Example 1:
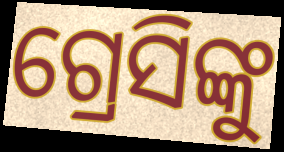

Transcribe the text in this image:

ଗ୍ରେସିଙ୍କୁ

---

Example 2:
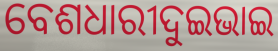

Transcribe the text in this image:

ବେଶଧାରୀଦୁଇଭାଇ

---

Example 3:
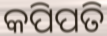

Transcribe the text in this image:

କପିପତି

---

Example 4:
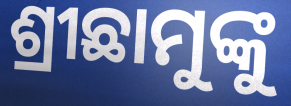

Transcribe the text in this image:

ଶ୍ରୀଛାମୁଙ୍କୁ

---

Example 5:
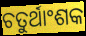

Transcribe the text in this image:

ଚତୁର୍ଥାଂଶକ